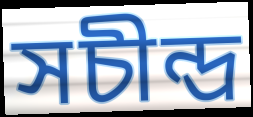
সচীন্দ্র